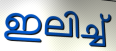
ഇലിച്ച്